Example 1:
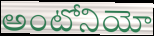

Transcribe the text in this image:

అంటోనియో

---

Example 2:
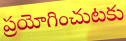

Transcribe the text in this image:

ప్రయోగించుటకు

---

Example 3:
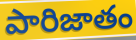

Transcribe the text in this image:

పారిజాతం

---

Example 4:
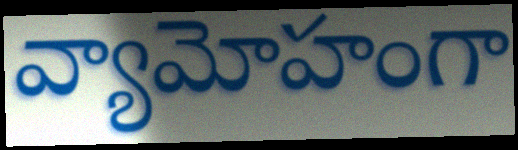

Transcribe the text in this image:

వ్యామోహంగా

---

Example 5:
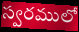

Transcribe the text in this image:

స్వరములో